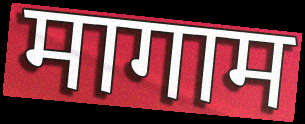
मागाम